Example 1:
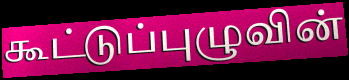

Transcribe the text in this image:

கூட்டுப்புழுவின்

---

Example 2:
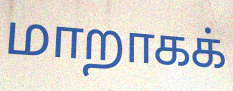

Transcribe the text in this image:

மாறாகக்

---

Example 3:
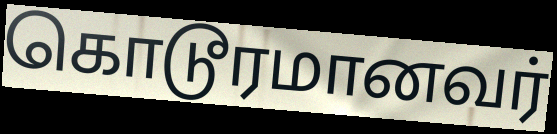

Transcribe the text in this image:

கொடூரமானவர்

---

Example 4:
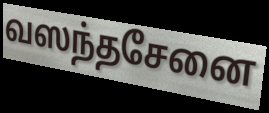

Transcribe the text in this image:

வஸந்தசேனை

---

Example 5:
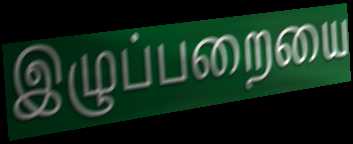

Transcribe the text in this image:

இழுப்பறையை